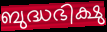
ബുദ്ധഭിക്ഷു